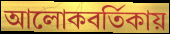
আলোকবর্তিকায়